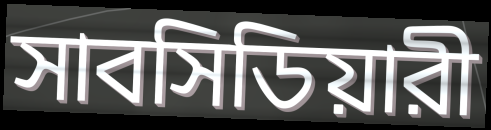
সাবসিডিয়ারী